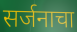
सर्जनाचा